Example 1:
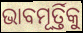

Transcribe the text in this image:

ଭାବମୂର୍ତ୍ତିକୁ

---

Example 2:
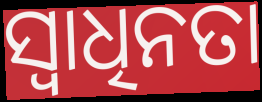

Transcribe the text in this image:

ସ୍ଵାଧିନତା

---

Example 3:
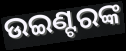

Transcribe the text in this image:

ଉଇଣ୍ଟରଙ୍କ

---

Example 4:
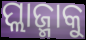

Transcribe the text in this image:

ପ୍ଲାଜ୍ମାକୁ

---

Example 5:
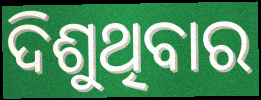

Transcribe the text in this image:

ଦିଶୁଥିବାର